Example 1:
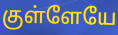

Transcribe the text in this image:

குள்ளேயே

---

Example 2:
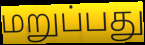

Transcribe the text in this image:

மறுப்பது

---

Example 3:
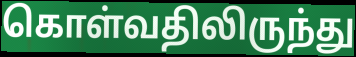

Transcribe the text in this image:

கொள்வதிலிருந்து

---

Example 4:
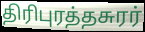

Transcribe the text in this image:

திரிபுரத்தசுரர்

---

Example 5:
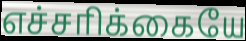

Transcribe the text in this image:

எச்சரிக்கையே